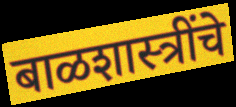
बाळशास्त्रींचे